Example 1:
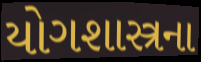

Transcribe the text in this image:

યોગશાસ્ત્રના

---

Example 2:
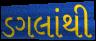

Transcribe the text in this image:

ડગલાંથી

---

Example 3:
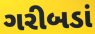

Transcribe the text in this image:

ગરીબડાં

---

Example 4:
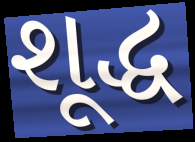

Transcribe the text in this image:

શૂદ્ધ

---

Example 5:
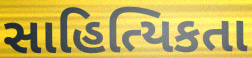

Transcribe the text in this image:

સાહિત્યિકતા